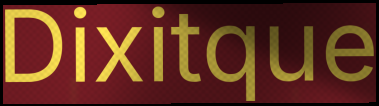
Dixitque